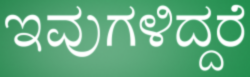
ಇವುಗಳಿದ್ದರೆ